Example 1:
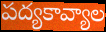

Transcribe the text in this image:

పద్యకావ్యాల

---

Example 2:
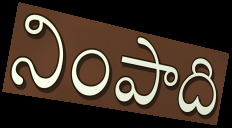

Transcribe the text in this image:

నింపాది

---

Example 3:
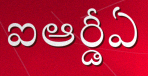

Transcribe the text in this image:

ఐఆర్డీఏ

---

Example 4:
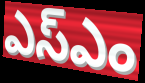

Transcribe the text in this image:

ఎస్ఎం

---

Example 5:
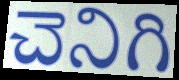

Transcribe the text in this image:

చెనిగి